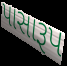
પાસારૂપ